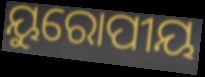
ୟୁରୋପୀୟ